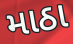
માઠા